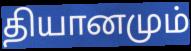
தியானமும்